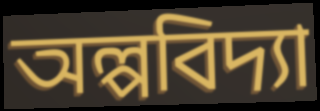
অল্পবিদ্যা